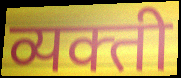
व्यक्‍ती